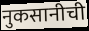
नुकसानीची